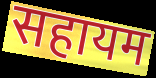
सहायम